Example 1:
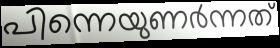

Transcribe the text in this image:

പിന്നെയുണർന്നത്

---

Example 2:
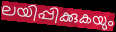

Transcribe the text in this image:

ലയിപ്പിക്കുകയും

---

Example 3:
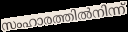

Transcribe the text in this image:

സംഹാരത്തിൽനിന്ന്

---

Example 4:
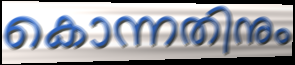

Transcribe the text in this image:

കൊന്നതിനും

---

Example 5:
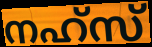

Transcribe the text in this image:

നഹ്സ്